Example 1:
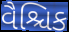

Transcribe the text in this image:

વૈશ્ચિક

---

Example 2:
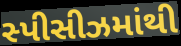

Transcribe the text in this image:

સ્પીસીઝમાંથી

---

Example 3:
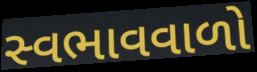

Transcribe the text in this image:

સ્વભાવવાળો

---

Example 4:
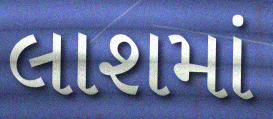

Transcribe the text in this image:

લાશમાં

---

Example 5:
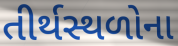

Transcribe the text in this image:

તીર્થસ્થળોના